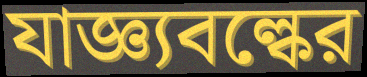
যাজ্ঞ্যবল্কের